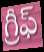
గ్రీఫ్